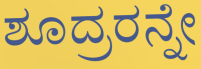
ಶೂದ್ರರನ್ನೇ